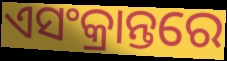
ଏସଂକ୍ରାନ୍ତରେ